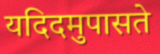
यदिदमुपासते